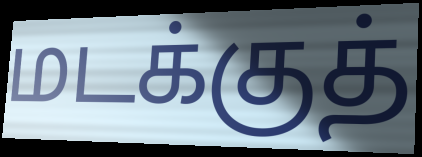
மடக்குத்